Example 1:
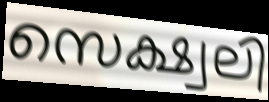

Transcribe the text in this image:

സെക്ഷ്വലി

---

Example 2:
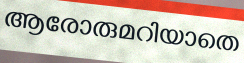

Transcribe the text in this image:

ആരോരുമറിയാതെ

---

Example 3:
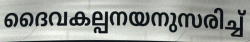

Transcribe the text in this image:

ദൈവകല്പനയനുസരിച്ച്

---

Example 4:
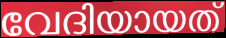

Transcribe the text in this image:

വേദിയായത്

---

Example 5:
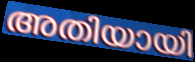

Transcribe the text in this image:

അതിയായി